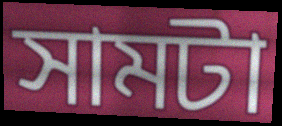
সামটা